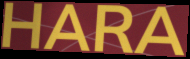
HARA